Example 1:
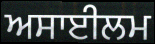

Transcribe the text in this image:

ਅਸਾਈਲਮ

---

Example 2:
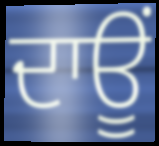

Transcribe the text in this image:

ਦਾਊਂ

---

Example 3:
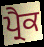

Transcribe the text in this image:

ਪ੍ਰੈਕ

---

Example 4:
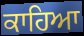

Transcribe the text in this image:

ਕਾਹਿਆ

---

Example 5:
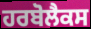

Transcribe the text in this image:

ਹਰਬੋਲੈਕਸ